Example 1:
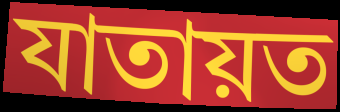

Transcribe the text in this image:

যাতায়ত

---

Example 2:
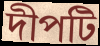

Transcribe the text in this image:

দীপটি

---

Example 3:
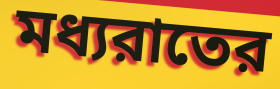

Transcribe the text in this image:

মধ্যরাতের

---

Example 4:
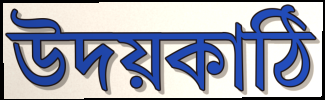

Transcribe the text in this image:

উদয়কাঠি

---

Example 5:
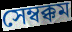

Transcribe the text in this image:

সেম্বক্কম